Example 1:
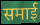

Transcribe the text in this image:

समाई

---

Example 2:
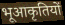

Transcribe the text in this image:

भूआकृतियों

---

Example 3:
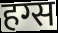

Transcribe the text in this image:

हग्स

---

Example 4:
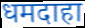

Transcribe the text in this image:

धमदाहा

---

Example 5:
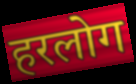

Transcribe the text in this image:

हरलोग